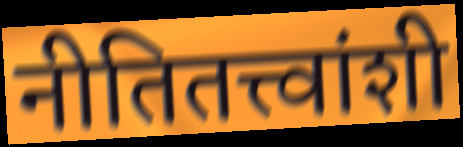
नीतितत्त्वांशी